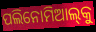
ପଲିନୋମିଆଲ୍‌କୁ